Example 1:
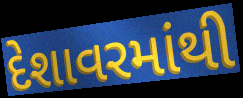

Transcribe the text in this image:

દેશાવરમાંથી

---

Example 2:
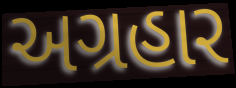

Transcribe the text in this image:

અગ્રહાર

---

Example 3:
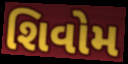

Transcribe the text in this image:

શિવોમ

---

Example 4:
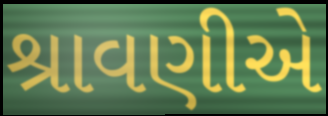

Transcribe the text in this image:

શ્રાવણીએ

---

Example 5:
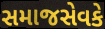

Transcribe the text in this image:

સમાજસેવકે